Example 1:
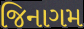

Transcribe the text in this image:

જિનાગમ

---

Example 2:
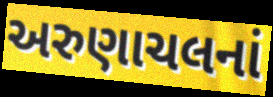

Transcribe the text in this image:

અરુણાચલનાં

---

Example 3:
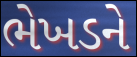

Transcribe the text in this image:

ભેખડને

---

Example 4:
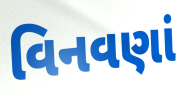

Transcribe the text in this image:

વિનવણાં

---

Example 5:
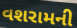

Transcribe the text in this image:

વશરામની